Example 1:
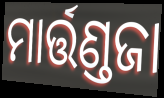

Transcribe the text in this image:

ମାର୍ତ୍ତଣ୍ଡଜା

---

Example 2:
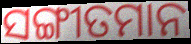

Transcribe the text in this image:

ସଙ୍ଗୀତମାନ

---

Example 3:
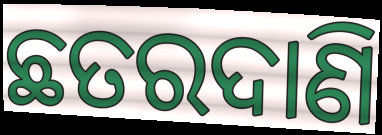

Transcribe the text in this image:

ଛତରଦାଣି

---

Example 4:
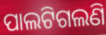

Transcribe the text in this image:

ପାଲଟିଗଲଣି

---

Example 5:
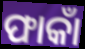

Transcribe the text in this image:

ଫାକାଁ